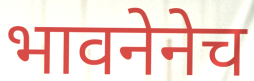
भावनेनेच